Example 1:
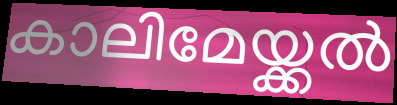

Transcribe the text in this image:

കാലിമേയ്ക്കൽ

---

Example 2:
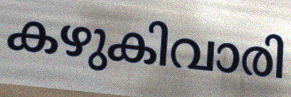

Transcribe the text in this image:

കഴുകിവാരി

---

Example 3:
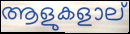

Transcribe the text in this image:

ആളുകളാല്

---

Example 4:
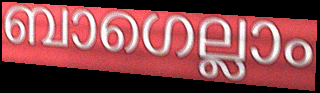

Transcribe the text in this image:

ബാഗെല്ലാം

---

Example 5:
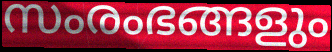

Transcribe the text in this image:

സംരംഭങ്ങളും